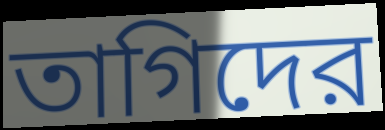
তাগিদের